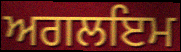
ਅਗਲਇਮ